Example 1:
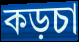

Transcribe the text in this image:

কড়চা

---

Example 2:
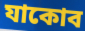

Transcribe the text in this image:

যাকোব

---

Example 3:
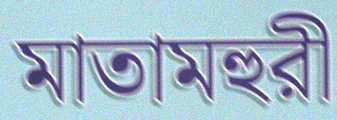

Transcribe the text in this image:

মাতামহুরী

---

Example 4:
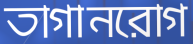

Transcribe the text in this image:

তাগানরোগ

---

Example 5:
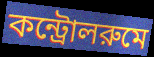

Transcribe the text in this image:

কন্ট্রোলরুমে